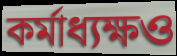
কর্মাধ্যক্ষও